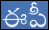
ఈపీ